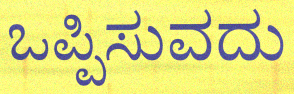
ಒಪ್ಪಿಸುವದು